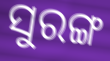
ସୁରଙ୍ଗ